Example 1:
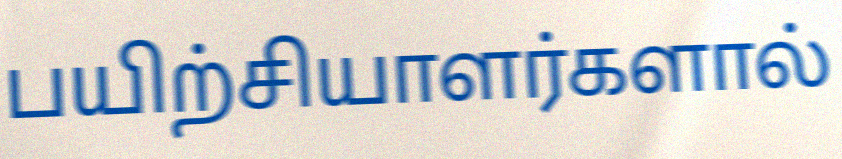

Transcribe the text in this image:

பயிற்சியாளர்களால்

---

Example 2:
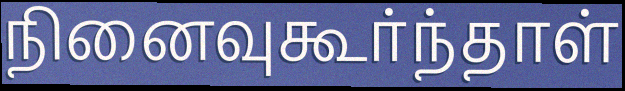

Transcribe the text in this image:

நினைவுகூர்ந்தாள்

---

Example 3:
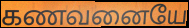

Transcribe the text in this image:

கணவனையே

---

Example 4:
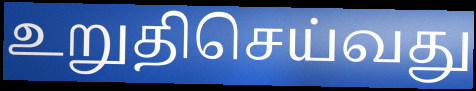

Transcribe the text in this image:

உறுதிசெய்வது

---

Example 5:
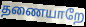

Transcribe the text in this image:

தணையாறே